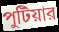
পুটিয়ার